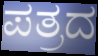
ಪತ್ರದ